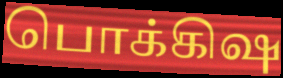
பொக்கிஷ